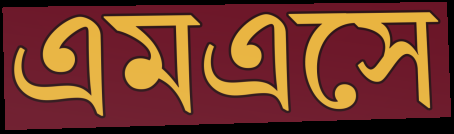
এমএসে